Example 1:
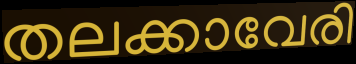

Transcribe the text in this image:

തലക്കാവേരി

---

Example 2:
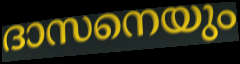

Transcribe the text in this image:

ദാസനെയും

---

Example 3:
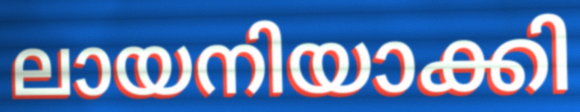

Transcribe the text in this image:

ലായനിയാക്കി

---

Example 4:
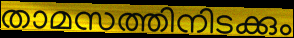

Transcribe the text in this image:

താമസത്തിനിടക്കും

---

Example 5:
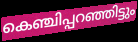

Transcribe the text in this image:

കെഞ്ചിപ്പറഞ്ഞിട്ടും